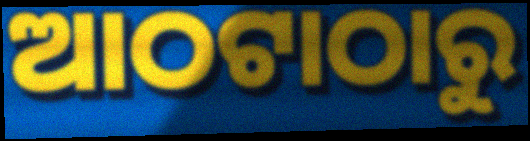
ଆଠଟାଠାରୁ